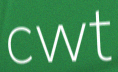
cwt